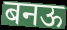
बनऊ